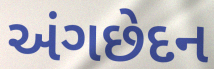
અંગછેદન